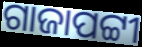
ଗାଜାପଟ୍ଟୀ